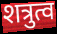
शत्रुत्व